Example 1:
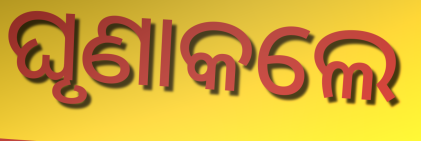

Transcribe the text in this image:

ଘୃଣାକଲେ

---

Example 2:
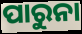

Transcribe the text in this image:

ପାରୁନା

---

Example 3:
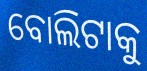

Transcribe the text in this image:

ବୋଲିଟାକୁ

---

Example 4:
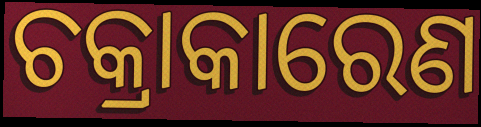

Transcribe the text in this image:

ଚକ୍ରାକାରେଣ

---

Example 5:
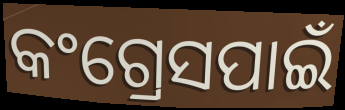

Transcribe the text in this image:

କଂଗ୍ରେସପାଇଁ